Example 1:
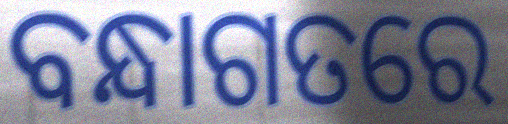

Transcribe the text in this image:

ବନ୍ଧାଗତରେ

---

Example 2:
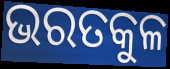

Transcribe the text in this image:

ଭରତକୁଳ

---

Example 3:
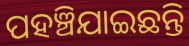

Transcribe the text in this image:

ପହଞ୍ଚିଯାଇଛନ୍ତି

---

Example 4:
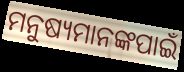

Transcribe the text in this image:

ମନୁଷ୍ୟମାନଙ୍କପାଇଁ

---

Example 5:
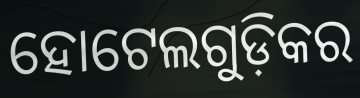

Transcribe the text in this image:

ହୋଟେଲଗୁଡ଼ିକର